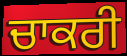
ਚਾਕਰੀ